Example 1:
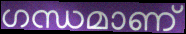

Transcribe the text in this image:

ഗന്ധമാണ്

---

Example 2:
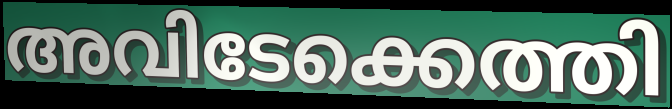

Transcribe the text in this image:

അവിടേക്കെത്തി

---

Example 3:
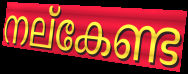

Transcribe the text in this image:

നല്കേണ്ട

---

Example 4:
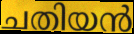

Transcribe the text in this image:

ചതിയൻ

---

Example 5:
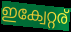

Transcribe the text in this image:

ഇക്വേറ്റര്